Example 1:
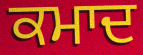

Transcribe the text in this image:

ਕਮਾਦ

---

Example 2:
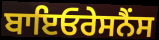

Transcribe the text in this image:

ਬਾਇਓਰੇਸਨੈਂਸ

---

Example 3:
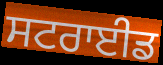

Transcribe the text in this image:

ਸਟਰਾਈਡ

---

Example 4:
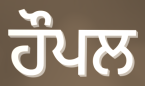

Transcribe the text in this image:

ਹੌਪਲ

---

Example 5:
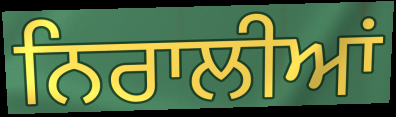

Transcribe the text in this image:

ਨਿਰਾਲੀਆਂ